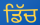
ਡਿੱਚ